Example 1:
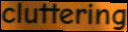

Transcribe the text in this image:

cluttering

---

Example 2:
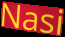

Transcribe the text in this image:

Nasi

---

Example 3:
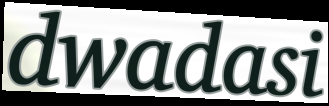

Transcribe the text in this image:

dwadasi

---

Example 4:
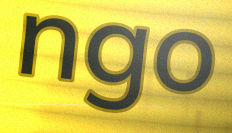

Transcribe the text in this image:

ngo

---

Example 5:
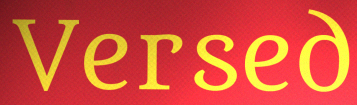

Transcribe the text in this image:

Versed